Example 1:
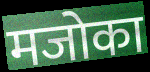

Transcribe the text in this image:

मजोका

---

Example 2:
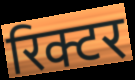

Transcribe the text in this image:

रिक्टर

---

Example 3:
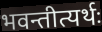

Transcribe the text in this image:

भवन्तीत्यर्थः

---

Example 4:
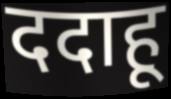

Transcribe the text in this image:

ददाहू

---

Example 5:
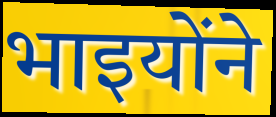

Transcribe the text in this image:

भाइयोंने